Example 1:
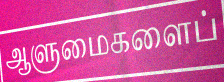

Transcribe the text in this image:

ஆளுமைகளைப்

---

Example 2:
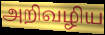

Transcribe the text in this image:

அறிவழிய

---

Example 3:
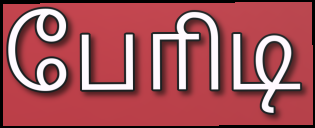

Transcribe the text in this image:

பேரிடி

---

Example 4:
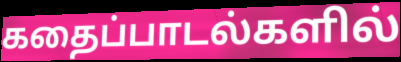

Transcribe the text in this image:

கதைப்பாடல்களில்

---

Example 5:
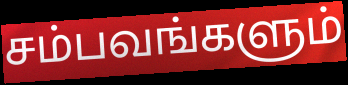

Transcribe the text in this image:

சம்பவங்களும்